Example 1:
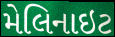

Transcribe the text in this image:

મેલિનાઇટ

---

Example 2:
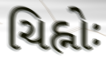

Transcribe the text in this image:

ચિહ્નોઃ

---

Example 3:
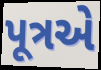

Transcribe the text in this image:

પૂત્રએ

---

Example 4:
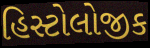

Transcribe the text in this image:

હિસ્ટોલોજીક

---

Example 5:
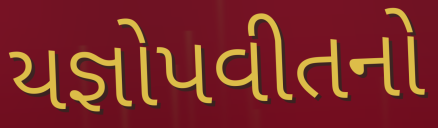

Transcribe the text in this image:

યજ્ઞોપવીતનો